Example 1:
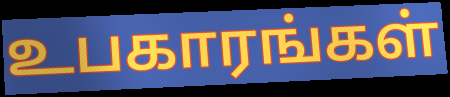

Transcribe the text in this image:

உபகாரங்கள்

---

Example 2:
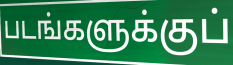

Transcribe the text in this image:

படங்களுக்குப்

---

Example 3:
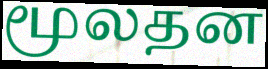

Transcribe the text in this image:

மூலதன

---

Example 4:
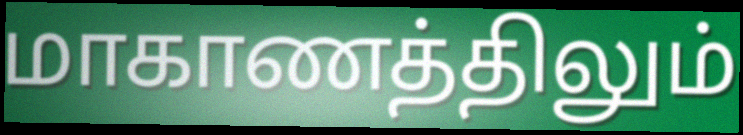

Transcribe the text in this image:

மாகாணத்திலும்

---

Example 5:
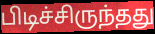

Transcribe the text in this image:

பிடிச்சிருந்தது